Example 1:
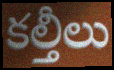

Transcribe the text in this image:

కల్తీలు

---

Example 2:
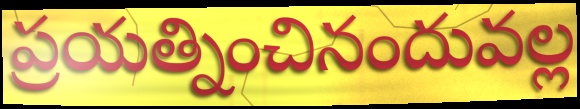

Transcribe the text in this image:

ప్రయత్నించినందువల్ల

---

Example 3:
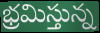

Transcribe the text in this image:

భ్రమిస్తున్న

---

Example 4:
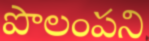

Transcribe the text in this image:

పొలంపని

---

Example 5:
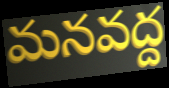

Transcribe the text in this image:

మనవద్ద